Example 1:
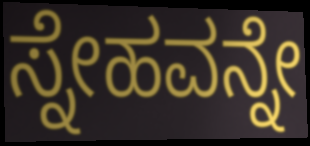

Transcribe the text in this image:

ಸ್ನೇಹವನ್ನೇ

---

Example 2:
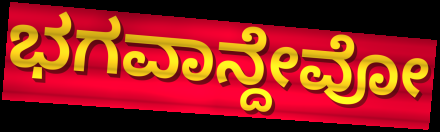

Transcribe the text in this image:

ಭಗವಾನ್ದೇವೋ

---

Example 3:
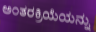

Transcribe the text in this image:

ಅಂತರಕ್ರಿಯೆಯನ್ನು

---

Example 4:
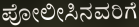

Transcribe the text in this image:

ಪೋಲೀಸಿನವರಿಗೆ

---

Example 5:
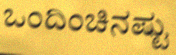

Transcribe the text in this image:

ಒಂದಿಂಚಿನಷ್ಟು